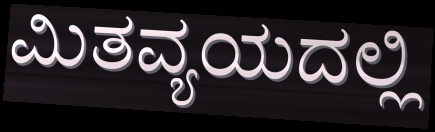
ಮಿತವ್ಯಯದಲ್ಲಿ